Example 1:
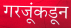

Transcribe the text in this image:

गरजूंकडून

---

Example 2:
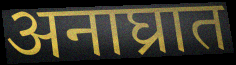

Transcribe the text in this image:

अनाघ्रात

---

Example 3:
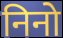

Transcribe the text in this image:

निनो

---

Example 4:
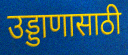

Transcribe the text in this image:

उड्डाणासाठी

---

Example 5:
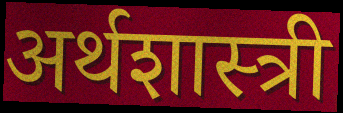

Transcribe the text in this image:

अर्थशास्त्री